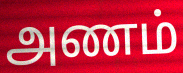
அணம்